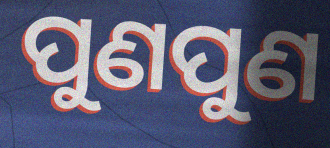
ପୁଣପୁଣ